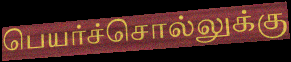
பெயர்ச்சொல்லுக்கு